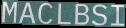
MACLBSI